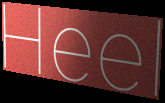
Heel